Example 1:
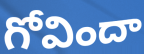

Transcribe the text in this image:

గోవిందా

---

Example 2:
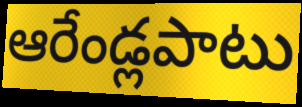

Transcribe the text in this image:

ఆరేండ్లపాటు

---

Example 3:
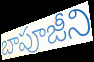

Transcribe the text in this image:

బాపూజీని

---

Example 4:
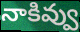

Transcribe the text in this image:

నాకివ్వు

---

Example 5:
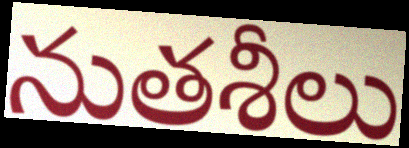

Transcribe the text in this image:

నుతశీలు